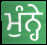
ਮੁੰਨ੍ਹੇ